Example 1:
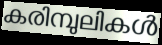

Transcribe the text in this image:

കരിമ്പുലികൾ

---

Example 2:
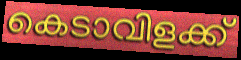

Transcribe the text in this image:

കെടാവിളക്ക്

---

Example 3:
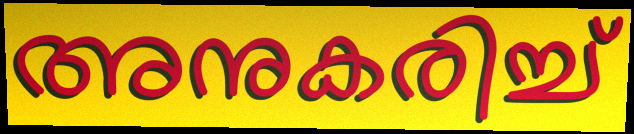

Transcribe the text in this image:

അനുകരിച്ച്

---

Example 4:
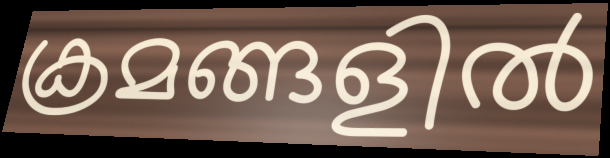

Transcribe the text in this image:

ക്രമങ്ങളിൽ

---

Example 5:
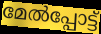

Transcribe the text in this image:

മേൽപ്പോട്ട്